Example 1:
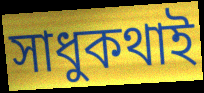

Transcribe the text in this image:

সাধুকথাই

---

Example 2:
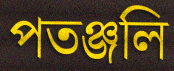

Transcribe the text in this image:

পতঞ্জলি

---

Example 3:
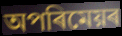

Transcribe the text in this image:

অপৰিমেয়ৰ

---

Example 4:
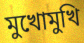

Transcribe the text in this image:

মুখোমুখি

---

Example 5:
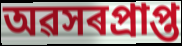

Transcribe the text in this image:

অৱসৰপ্ৰাপ্ত